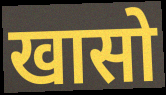
खासो